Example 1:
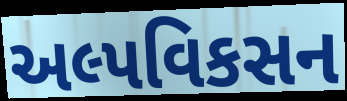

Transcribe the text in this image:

અલ્પવિકસન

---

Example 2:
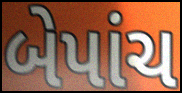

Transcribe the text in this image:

બેપાંચ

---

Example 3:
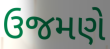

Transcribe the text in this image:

ઉજમણે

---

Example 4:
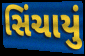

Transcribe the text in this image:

સિંચાયું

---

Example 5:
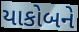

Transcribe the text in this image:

યાકોબને